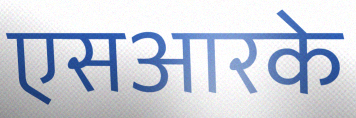
एसआरके